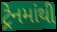
ટ્રેનમાંથી